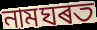
নামঘৰত